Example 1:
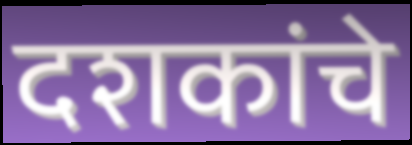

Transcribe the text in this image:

दशकांचे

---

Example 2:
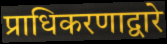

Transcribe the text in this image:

प्राधिकरणाद्वारे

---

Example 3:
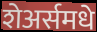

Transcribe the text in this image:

शेअर्समधे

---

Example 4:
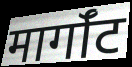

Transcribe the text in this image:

मार्गॉट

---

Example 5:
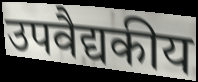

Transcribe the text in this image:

उपवैद्यकीय